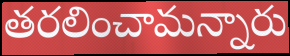
తరలించామన్నారు